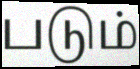
படும்